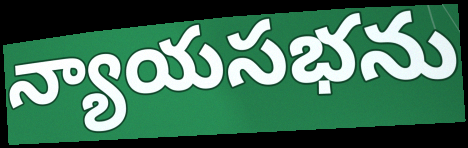
న్యాయసభను